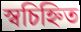
স্বচিহ্নিত